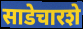
साडेचारशे